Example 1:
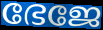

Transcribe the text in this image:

ഭേജേ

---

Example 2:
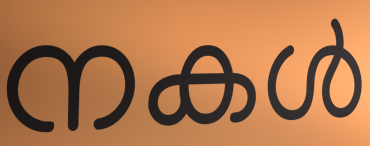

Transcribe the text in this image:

നകൾ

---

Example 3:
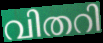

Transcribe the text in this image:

വിതറി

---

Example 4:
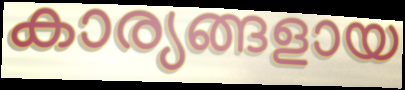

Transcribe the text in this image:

കാര്യങ്ങളായ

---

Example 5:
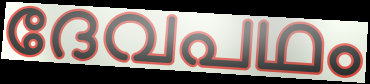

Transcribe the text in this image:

ദേവപഥം